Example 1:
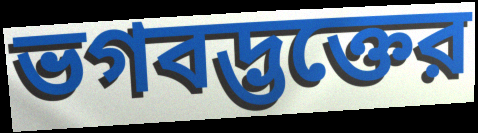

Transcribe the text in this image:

ভগবদ্ভক্তের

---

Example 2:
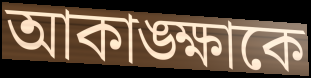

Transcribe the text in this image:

আকাঙ্ক্ষাকে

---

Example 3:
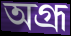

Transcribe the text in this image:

অগ্রূ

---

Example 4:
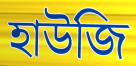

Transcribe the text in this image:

হাউজি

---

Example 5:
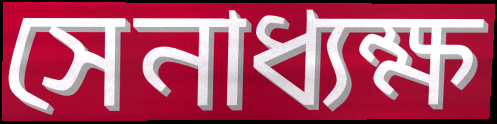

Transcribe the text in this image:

সেনাধ্যক্ষ